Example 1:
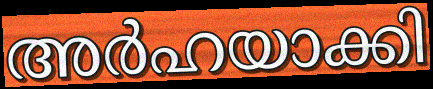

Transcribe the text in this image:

അർഹയാക്കി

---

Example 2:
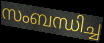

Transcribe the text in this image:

സംബന്ധിച്ച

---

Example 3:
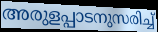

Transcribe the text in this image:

അരുളപ്പാടനുസരിച്ച്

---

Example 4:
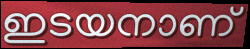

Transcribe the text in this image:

ഇടയനാണ്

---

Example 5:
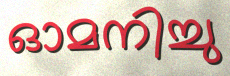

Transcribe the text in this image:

ഓമനിച്ചു